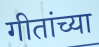
गीतांच्या